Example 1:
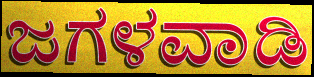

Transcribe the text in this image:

ಜಗಳವಾಡಿ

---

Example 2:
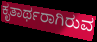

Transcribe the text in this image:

ಕೃತಾರ್ಥರಾಗಿರುವ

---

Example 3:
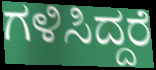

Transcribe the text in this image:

ಗಳಿಸಿದ್ದರೆ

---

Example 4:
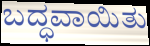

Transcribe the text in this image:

ಬದ್ಧವಾಯಿತು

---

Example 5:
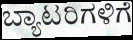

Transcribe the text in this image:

ಬ್ಯಾಟರಿಗಳಿಗೆ